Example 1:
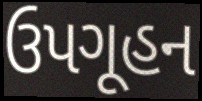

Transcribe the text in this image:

ઉપગૂહન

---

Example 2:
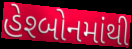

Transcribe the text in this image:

હેશ્બોનમાંથી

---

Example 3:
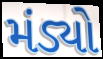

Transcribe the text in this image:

મંડ્યો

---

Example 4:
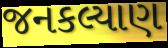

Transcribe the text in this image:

જનકલ્યાણ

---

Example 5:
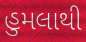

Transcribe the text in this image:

હુમલાથી